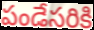
పండేసరికి